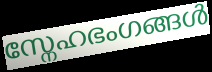
സ്നേഹഭംഗങ്ങൾ